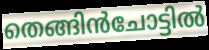
തെങ്ങിൻചോട്ടിൽ